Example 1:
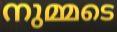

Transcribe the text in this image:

നുമ്മടെ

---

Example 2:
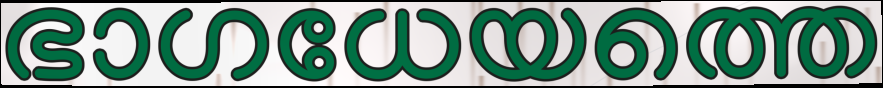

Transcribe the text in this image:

ഭാഗധേയത്തെ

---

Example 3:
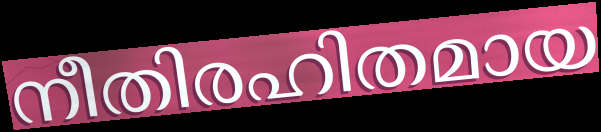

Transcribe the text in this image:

നീതിരഹിതമായ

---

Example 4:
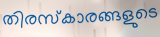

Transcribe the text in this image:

തിരസ്കാരങ്ങളുടെ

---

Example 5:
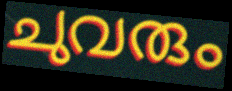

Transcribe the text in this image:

ചുവരും